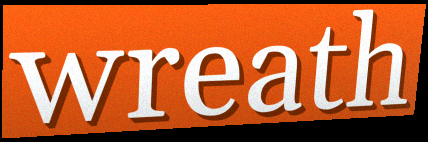
wreath